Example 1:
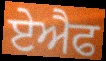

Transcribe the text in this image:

ਏਐਫ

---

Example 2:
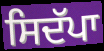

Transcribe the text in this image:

ਸਿਦੱਪਾ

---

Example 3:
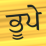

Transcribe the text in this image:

ਭੂਪੇ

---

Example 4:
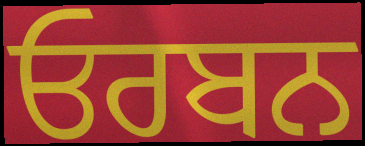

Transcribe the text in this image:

ਓਰਬਨ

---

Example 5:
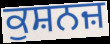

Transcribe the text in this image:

ਕੁਸ਼ਨਜ਼